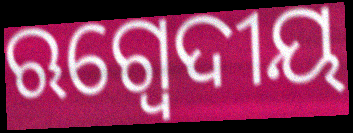
ଋଗ୍ବେଦୀୟ